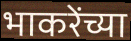
भाकरेंच्या